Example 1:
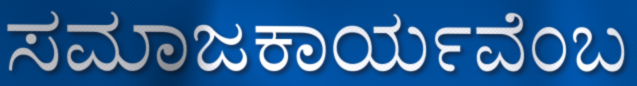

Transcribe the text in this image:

ಸಮಾಜಕಾರ್ಯವೆಂಬ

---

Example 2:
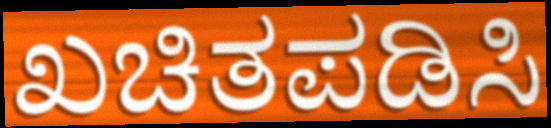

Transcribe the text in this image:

ಖಚಿತಪಡಿಸಿ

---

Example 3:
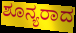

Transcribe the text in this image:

ಶೂನ್ಯರಾದ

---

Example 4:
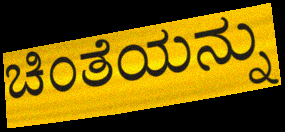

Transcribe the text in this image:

ಚಿಂತೆಯನ್ನು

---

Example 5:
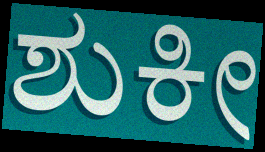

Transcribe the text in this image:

ಶುಕೀ